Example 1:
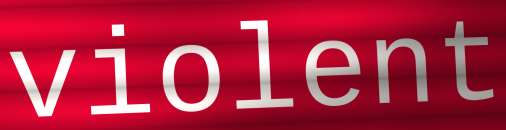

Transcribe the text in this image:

violent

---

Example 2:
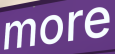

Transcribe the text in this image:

more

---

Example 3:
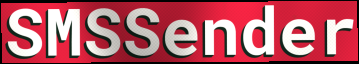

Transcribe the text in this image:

SMSSender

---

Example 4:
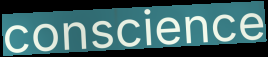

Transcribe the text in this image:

conscience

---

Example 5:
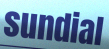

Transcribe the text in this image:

sundial